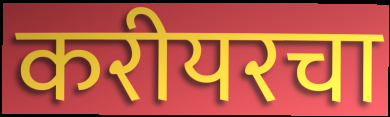
करीयरचा